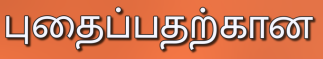
புதைப்பதற்கான